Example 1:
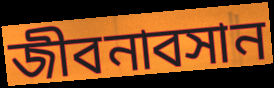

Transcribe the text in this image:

জীবনাবসান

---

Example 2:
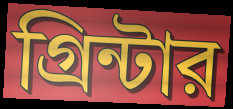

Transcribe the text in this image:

গ্রিন্টার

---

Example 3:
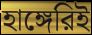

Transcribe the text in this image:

হাঙ্গেরিই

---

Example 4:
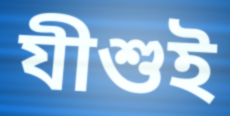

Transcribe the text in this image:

যীশুই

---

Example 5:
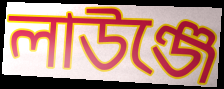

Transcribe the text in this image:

লাউঞ্জে